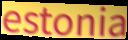
estonia